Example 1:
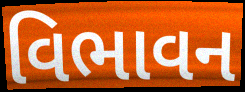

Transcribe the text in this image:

વિભાવન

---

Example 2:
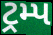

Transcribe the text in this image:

ટ્રમ્પ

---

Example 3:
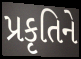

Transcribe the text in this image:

પ્રકૃતિને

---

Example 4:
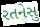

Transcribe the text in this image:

રતનેસુ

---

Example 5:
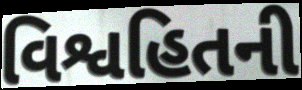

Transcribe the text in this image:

વિશ્વહિતની